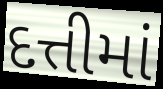
દત્તીમાં